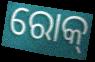
ରୋକ୍